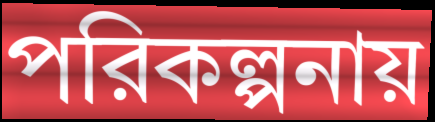
পরিকল্পনায়